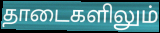
தாடைகளிலும்